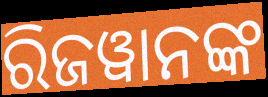
ରିଜୱାନଙ୍କ